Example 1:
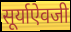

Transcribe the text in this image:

सूर्याऐवजी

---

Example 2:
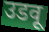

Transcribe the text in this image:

उडवू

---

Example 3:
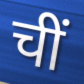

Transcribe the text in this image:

चीं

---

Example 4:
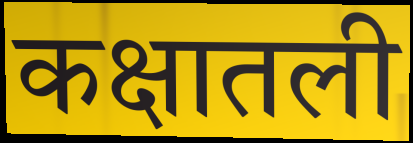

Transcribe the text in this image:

कक्षातली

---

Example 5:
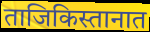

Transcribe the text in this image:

ताजिकिस्तानात